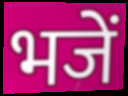
भजें